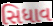
સિધાવ